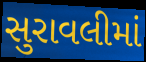
સુરાવલીમાં